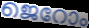
ജെറോം